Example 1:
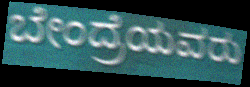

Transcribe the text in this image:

ಬೇಂದ್ರೆಯವರು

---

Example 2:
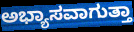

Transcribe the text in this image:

ಅಭ್ಯಾಸವಾಗುತ್ತಾ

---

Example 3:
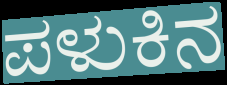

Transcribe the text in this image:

ಪಳುಕಿನ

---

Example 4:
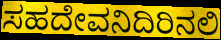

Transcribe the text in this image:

ಸಹದೇವನಿದಿರಿನಲಿ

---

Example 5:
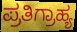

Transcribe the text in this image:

ಪ್ರತಿಗ್ರಾಹ್ಯ